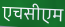
एचसीएम